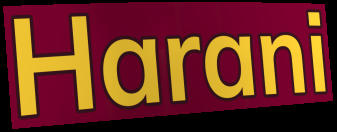
Harani